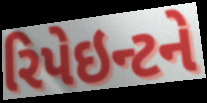
રિપેઇન્ટને